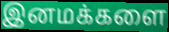
இனமக்களை